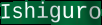
Ishiguro